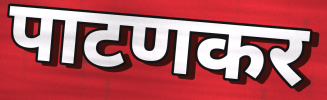
पाटणकर